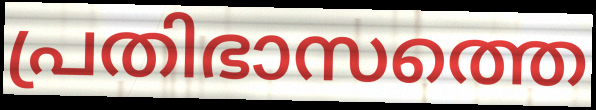
പ്രതിഭാസത്തെ